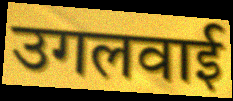
उगलवाई